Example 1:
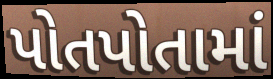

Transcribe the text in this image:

પોતપોતામાં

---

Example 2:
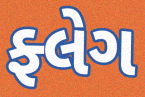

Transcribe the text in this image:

ફ્લેગ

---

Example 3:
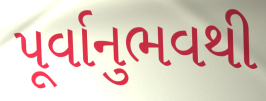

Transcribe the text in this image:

પૂર્વાનુભવથી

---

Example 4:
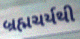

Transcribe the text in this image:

બ્રહ્મચર્યથી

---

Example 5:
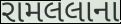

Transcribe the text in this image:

રામલલાના